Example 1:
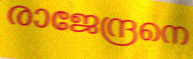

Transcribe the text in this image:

രാജേന്ദ്രനെ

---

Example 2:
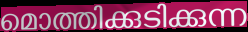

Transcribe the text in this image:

മൊത്തിക്കുടിക്കുന്ന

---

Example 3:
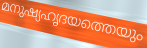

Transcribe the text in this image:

മനുഷ്യഹൃദയത്തെയും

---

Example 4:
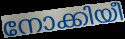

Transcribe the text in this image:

നോക്കിയീ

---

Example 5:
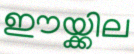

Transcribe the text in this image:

ഈയ്ക്കില